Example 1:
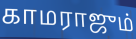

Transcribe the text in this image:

காமராஜும்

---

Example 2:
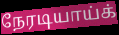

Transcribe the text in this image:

நேரடியாய்க்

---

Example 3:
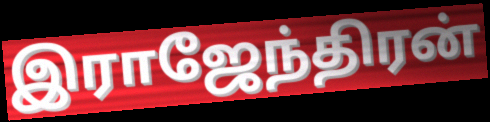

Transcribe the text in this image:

இராஜேந்திரன்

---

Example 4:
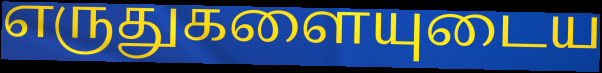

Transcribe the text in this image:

எருதுகளையுடைய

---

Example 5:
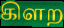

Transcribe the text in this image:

கிளற